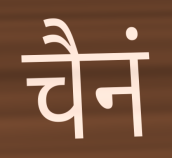
चैनं